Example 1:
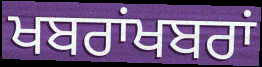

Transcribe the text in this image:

ਖਬਰਾਂਖਬਰਾਂ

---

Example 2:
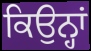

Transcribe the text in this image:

ਕਿਉਨ੍ਹਾਂ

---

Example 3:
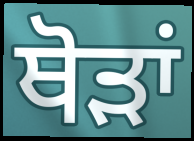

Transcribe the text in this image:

ਥੋੜਾਂ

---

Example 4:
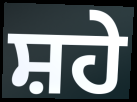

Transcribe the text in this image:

ਸ਼ਹੇ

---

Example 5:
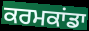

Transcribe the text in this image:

ਕਰਮਕਾਂਡਾ